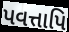
પવત્તાપિ